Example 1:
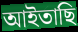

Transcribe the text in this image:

আইতাছি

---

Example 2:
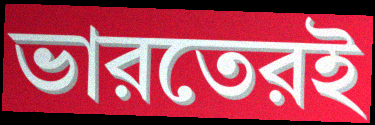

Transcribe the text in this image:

ভারতেরই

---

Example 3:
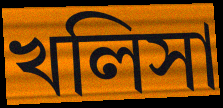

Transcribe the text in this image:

খলিসা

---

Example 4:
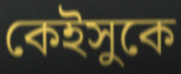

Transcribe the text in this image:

কেইসুকে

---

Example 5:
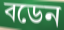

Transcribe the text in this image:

বডেন